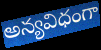
అన్యవిధంగా